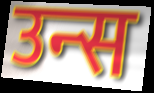
उन्स